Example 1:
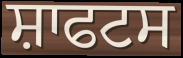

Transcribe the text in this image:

ਸ਼ਾਫਟਸ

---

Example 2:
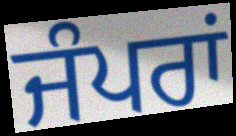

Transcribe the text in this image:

ਜੰਪਰਾਂ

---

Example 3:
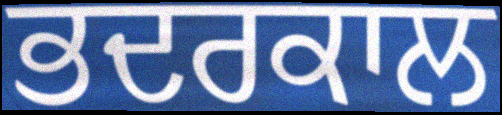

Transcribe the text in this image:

ਭਦਰਕਾਲ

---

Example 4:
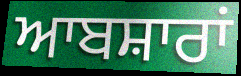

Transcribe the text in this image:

ਆਬਸ਼ਾਰਾਂ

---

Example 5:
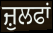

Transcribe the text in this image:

ਜ਼ੁਲਫਾਂ